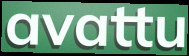
avattu